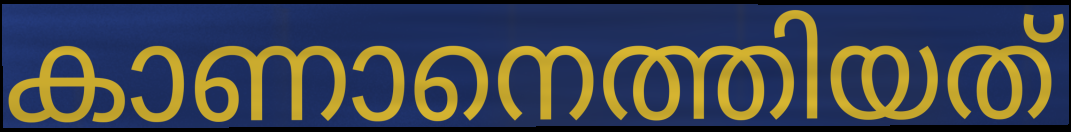
കാണാനെത്തിയത്